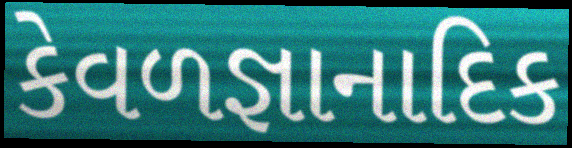
કેવળજ્ઞાનાદિક